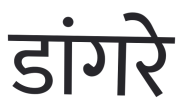
डांगरे